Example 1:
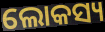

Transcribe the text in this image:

ଲୋକସ୍ୟ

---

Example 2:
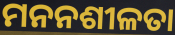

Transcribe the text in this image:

ମନନଶୀଳତା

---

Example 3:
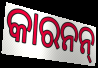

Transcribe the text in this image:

କାରନନ୍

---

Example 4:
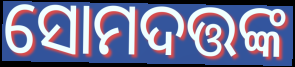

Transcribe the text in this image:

ସୋମଦତ୍ତଙ୍କ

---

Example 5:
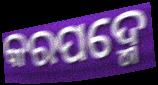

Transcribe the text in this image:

କରପଦ୍ମେ